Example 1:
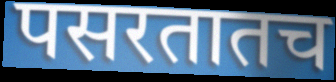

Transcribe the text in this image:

पसरतातच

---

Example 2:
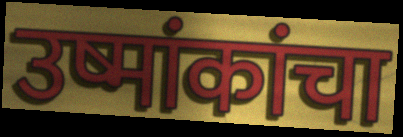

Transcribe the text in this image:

उष्मांकांचा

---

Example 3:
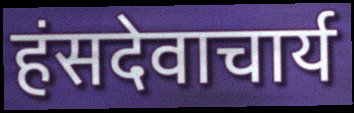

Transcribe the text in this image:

हंसदेवाचार्य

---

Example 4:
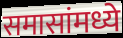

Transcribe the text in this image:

समासांमध्ये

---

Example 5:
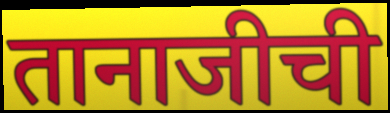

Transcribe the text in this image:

तानाजीची